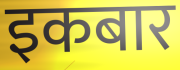
इकबार